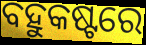
ବହୁକଷ୍ଟରେ